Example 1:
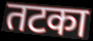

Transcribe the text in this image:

तटका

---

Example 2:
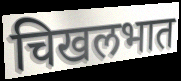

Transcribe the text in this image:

चिखलभात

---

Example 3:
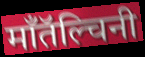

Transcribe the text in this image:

माँतॅल्चिनी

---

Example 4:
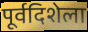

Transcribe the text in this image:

पूर्वदिशेला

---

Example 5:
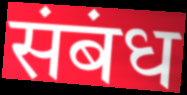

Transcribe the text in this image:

संबंध